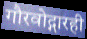
गौरवोद्गारही